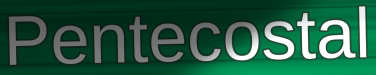
Pentecostal